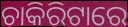
ଚାକିରିଟାରେ